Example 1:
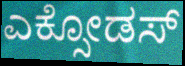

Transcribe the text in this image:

ಎಕ್ಸೋಡಸ್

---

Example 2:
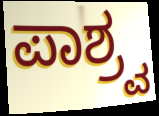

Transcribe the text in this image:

ಪಾಶ್ರ್ವ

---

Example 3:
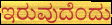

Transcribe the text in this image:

ಇರುವುದೆಂದು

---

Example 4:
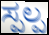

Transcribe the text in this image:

ಸ್ಪಲ್ಪ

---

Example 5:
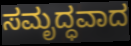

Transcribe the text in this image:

ಸಮೃದ್ಧವಾದ